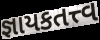
જ્ઞાયકતત્ત્વ